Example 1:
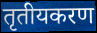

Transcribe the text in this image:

तृतीयकरण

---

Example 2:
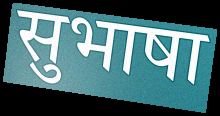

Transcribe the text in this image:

सुभाषा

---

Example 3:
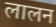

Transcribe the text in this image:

लालन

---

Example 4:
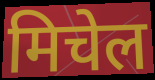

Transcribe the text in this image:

मिचेल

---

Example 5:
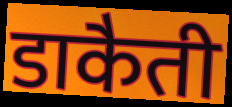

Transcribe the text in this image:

डाकैती